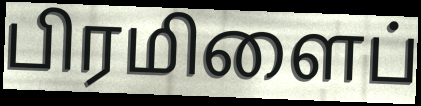
பிரமிளைப்